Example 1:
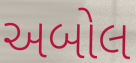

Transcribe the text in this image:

અબોલ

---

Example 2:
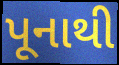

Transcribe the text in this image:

પૂનાથી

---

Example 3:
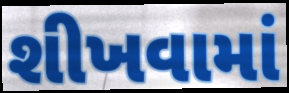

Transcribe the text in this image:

શીખવામાં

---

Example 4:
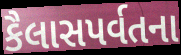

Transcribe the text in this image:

કૈલાસપર્વતના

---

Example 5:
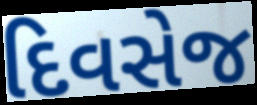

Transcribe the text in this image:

દિવસેજ